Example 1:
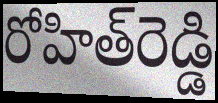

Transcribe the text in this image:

రోహిత్‌రెడ్డి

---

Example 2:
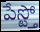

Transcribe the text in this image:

పేస్ట్తో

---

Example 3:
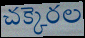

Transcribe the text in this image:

చక్కెరల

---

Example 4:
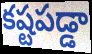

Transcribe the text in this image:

కష్టపడ్డా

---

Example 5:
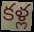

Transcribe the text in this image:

కళ్ల